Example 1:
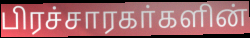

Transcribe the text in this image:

பிரச்சாரகர்களின்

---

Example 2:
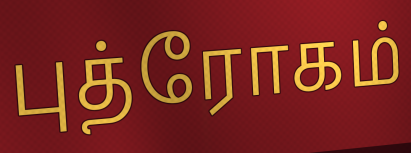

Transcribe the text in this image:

புத்ரோகம்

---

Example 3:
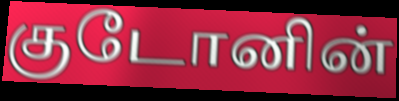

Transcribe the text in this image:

குடோனின்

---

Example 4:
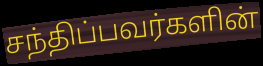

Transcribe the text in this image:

சந்திப்பவர்களின்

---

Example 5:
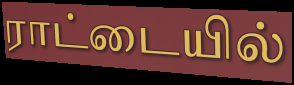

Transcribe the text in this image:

ராட்டையில்